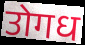
उोगध